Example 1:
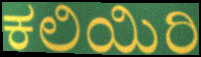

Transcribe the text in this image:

ಕಲಿಯಿರಿ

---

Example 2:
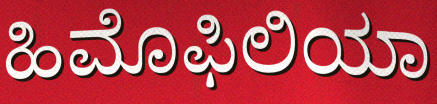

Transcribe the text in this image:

ಹಿಮೊಫಿಲಿಯಾ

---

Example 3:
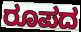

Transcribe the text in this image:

ರೂಪದ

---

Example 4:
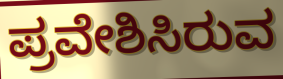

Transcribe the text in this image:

ಪ್ರವೇಶಿಸಿರುವ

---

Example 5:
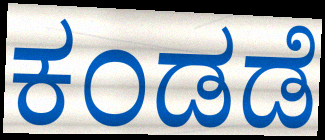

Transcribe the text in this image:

ಕಂಡಡೆ